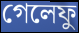
গেলেফু